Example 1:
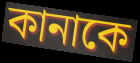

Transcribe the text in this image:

কানাকে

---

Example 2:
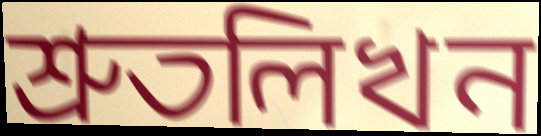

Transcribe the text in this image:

শ্রুতলিখন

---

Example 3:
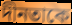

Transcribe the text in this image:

দীনতাকে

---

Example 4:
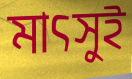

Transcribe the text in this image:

মাৎসুই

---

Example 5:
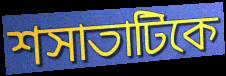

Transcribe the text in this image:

শসাতাটিকে